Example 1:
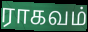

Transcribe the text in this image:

ராகவம்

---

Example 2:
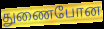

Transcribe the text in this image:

துணைபோன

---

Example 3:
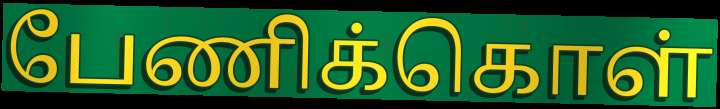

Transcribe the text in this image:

பேணிக்கொள்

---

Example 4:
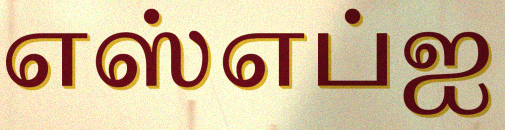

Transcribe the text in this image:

எஸ்எப்ஐ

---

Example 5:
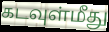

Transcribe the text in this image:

கடவுள்மீது